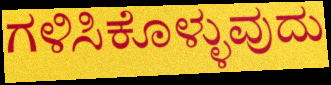
ಗಳಿಸಿಕೊಳ್ಳುವುದು